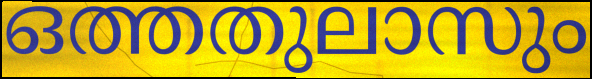
ഒത്തതുലാസും